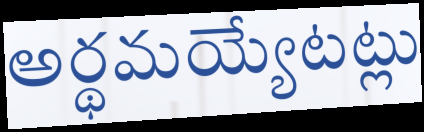
అర్థమయ్యేటట్లు